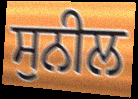
ਸੁਨੀਲ